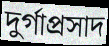
দুৰ্গাপ্ৰসাদ